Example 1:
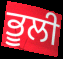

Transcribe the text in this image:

ਭੂਲੀ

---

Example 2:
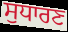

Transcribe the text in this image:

ਸੁਧਾਰਣ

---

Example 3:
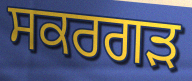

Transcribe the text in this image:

ਸਕਰਗੜ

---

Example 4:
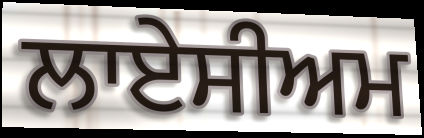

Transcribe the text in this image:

ਲਾਏਸੀਅਮ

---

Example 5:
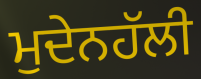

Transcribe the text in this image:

ਮੁਦੇਨਹੱਲੀ